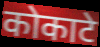
कोकाटे